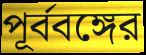
পূর্ববঙ্গের